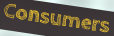
Consumers